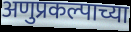
अणुप्रकल्पाच्या